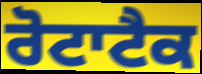
ਰੋਟਾਟੈਕ